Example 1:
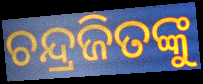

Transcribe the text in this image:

ଚନ୍ଦ୍ରଜିତଙ୍କୁ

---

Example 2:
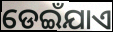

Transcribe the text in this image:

ଡେଇଁଯାଏ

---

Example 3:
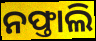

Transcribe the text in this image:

ନଫ୍ତାଲି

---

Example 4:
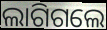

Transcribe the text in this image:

ଲାଗିଗଲେ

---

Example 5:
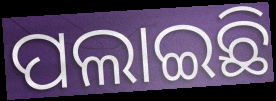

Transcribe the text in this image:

ପଲାଇଛି